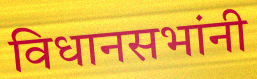
विधानसभांनी